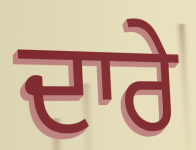
ਦਾਰੇ